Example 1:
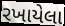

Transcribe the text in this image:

રખાયેલા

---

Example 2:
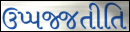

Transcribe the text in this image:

ઉપ્પજ્જતીતિ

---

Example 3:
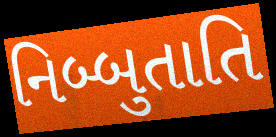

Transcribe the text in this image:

નિબ્બુતાતિ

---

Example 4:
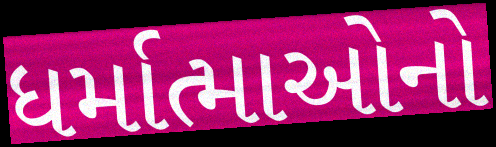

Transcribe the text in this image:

ધર્માત્માઓનો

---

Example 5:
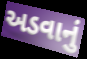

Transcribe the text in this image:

અડવાનું